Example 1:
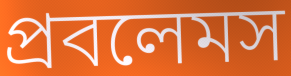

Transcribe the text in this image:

প্রবলেমস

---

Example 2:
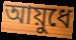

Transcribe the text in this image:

আয়ুধে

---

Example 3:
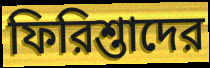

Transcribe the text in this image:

ফিরিশ্তাদের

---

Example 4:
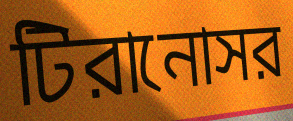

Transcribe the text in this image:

টিরানোসর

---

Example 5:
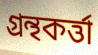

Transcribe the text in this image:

গ্রন্থকর্ত্তা